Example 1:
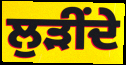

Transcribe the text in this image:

ਲੁੜੀਂਦੇ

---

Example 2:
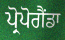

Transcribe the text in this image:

ਪ੍ਰੋਪੋਗੈਂਡਾ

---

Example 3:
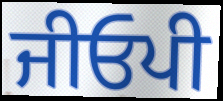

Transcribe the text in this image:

ਜੀਓਪੀ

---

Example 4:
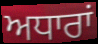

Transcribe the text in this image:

ਅਧਾਰਾਂ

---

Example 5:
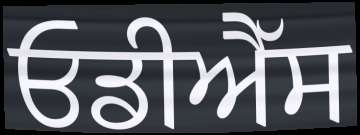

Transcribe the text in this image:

ਓਡੀਐੱਸ